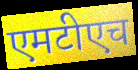
एमटीएच